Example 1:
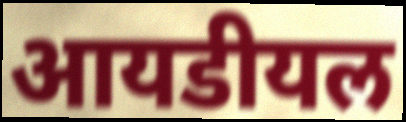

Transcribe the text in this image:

आयडीयल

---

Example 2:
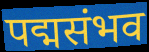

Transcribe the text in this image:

पद्मसंभव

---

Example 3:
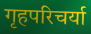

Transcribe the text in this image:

गृहपरिचर्या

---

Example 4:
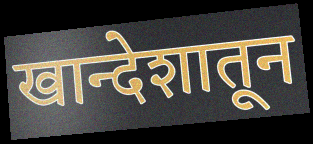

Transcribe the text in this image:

खान्देशातून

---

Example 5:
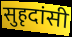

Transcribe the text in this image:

सुहृदांसी